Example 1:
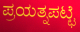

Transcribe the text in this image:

ಪ್ರಯತ್ನಪಟ್ಟೆ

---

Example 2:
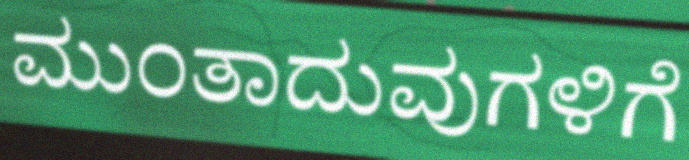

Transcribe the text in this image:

ಮುಂತಾದುವುಗಳಿಗೆ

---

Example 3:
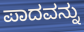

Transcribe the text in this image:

ಪಾದವನ್ನು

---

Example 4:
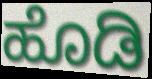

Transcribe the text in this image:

ಹೊಡಿ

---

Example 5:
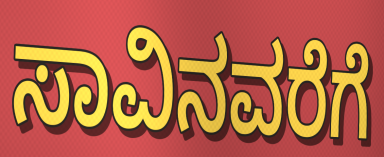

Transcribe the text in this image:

ಸಾವಿನವರೆಗೆ